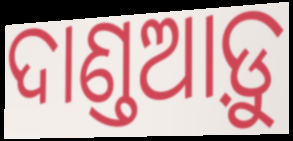
ଦାଣ୍ଡଆଡ଼ୁ